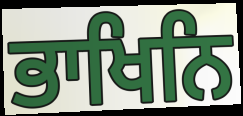
ਭਾਖਿਨਿ